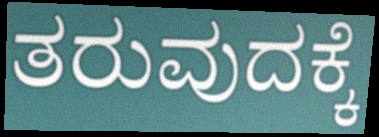
ತರುವುದಕ್ಕೆ